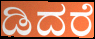
ಡಿದರೆ